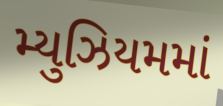
મ્યુઝિયમમાં